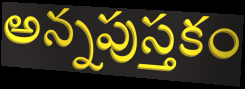
అన్నపుస్తకం